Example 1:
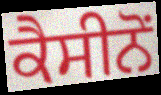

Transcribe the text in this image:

ਕੈਸੀਨੋਂ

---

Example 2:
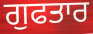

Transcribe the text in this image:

ਗੁਫਤਾਰ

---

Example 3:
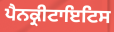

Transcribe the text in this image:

ਪੈਨਕ੍ਰੀਟਾਇਟਿਸ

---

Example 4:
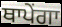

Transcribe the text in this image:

ਥਾਪੇਂਗਾ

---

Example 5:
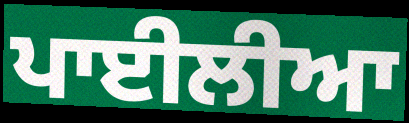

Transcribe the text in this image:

ਪਾਈਲੀਆ